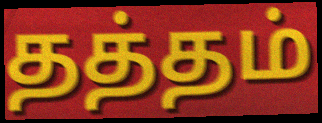
தத்தம்